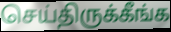
செய்திருக்கீங்க